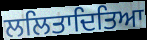
ਲਲਿਤਾਦਿਤਿਆ